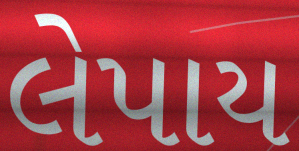
લેપાય